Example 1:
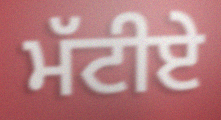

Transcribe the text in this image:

ਮੱਟੀਏ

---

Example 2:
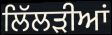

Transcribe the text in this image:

ਲਿੱਲੜੀਆਂ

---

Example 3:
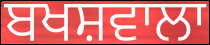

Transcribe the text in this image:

ਬਖਸ਼ਵਾਲਾ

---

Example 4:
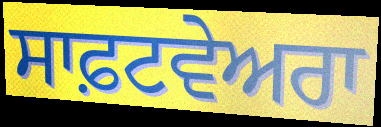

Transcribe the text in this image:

ਸਾਫ਼ਟਵੇਅਰਾ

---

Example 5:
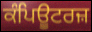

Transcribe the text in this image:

ਕੰਪਿਊਟਰਜ਼